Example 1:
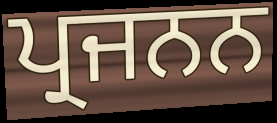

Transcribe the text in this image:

ਪ੍ਰਜਨਨ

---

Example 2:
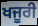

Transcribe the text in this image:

ਖਜੂਰੀ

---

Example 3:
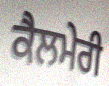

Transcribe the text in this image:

ਕੈਲਮੇਰੀ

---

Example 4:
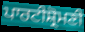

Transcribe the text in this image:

ਪਾਰਟੀਸ਼੍ਰੋਮਣੀ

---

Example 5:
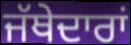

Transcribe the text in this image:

ਜੱਥੇਦਾਰਾਂ